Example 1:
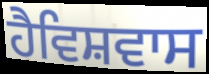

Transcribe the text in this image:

ਹੈਵਿਸ਼ਵਾਸ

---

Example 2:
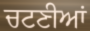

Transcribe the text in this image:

ਚਟਣੀਆਂ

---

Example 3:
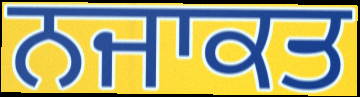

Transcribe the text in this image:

ਨਜਾਕਤ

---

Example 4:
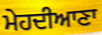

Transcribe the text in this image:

ਮੇਹਦੀਆਣਾ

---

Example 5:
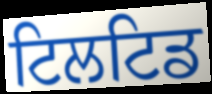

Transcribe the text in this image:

ਟਿਲਟਿਡ